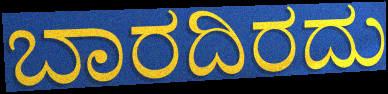
ಬಾರದಿರದು